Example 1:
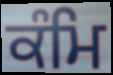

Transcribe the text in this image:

ਕੰਮਿ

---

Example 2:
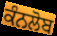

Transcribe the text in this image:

ਕੰਨਲੋਬ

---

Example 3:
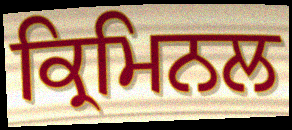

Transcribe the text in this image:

ਕ੍ਰਿਮਿਨਲ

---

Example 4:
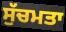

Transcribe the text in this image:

ਸੁੱਚਮਤਾ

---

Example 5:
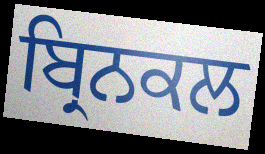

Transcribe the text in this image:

ਬ੍ਰਿਨਕਲ